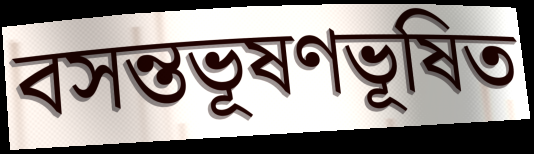
বসন্তভূষণভূষিত